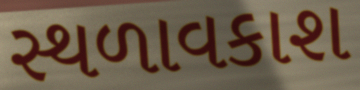
સ્થળાવકાશ